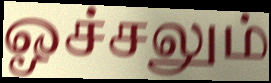
ஓச்சலும்